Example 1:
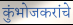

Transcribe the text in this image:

कुंभोजकरांचे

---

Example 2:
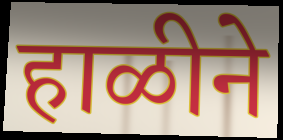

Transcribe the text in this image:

हाळीने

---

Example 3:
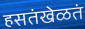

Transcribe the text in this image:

हसतंखेळतं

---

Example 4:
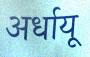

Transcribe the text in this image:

अर्धायू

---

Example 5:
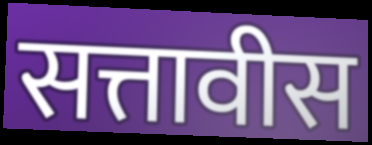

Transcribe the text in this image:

सत्तावीस